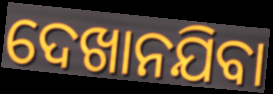
ଦେଖାନଯିବା